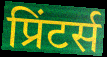
प्रिंटर्स